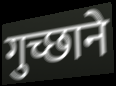
गुच्छाने